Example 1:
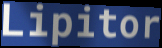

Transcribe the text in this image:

Lipitor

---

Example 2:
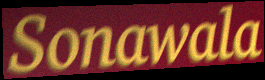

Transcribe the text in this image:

Sonawala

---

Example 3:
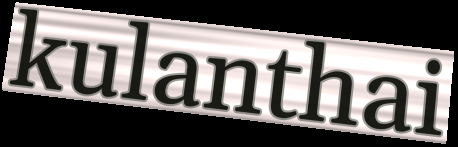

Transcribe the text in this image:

kulanthai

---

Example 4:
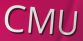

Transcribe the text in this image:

CMU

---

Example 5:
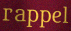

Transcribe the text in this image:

rappel